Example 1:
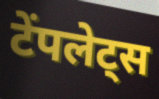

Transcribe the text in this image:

टेंपलेट्स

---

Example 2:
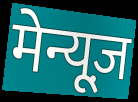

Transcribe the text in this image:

मेन्यूज़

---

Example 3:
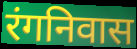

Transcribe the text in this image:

रंगनिवास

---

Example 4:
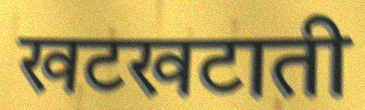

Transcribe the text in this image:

खटखटाती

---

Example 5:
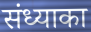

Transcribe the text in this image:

संध्याका